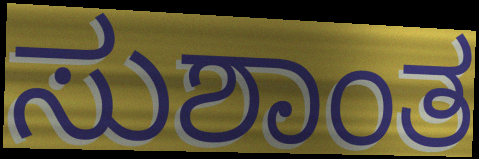
ಸುಶಾಂತ